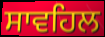
ਸਾਵਹਿਲ